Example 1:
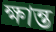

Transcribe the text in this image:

ক্ষান্ত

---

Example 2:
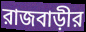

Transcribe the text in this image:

রাজবাড়ীর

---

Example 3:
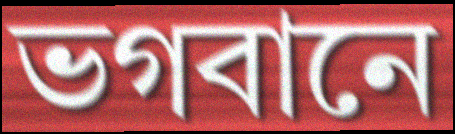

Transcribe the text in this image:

ভগবানে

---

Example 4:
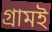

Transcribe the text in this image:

গ্রামই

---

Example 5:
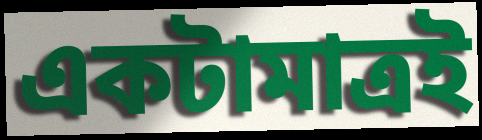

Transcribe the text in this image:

একটামাত্রই